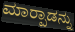
ಮಾರ‍್ಪಾಡನ್ನು